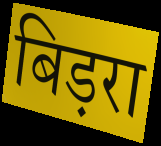
बिड़रा